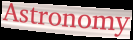
Astronomy